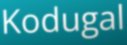
Kodugal